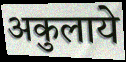
अकुलाये